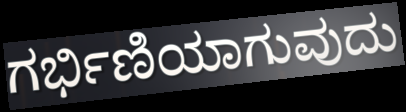
ಗರ್ಭಿಣಿಯಾಗುವುದು